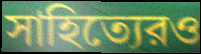
সাহিত্যেরও